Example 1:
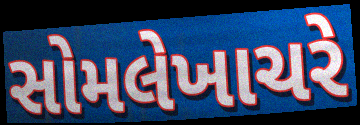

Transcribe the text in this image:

સોમલેખાચરે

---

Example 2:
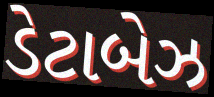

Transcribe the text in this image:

ડેટાબેઝ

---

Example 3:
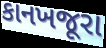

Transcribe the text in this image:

કાનખજૂરા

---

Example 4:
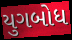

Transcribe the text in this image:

યુગબોધ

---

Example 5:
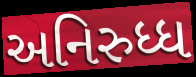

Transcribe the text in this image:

અનિરુધ્ધ